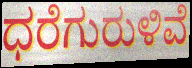
ಧರೆಗುರುಳಿವೆ